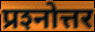
प्रश्‍नोत्तर